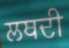
ਲਥਦੀ